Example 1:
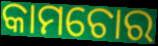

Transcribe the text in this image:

କାମଚୋର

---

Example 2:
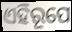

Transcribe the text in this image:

ଏହିରୂପେ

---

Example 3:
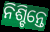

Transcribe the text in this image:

ନିଶ୍ଚିନ୍ତେ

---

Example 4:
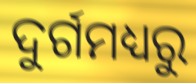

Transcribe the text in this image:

ଦୁର୍ଗମଧ୍ୟରୁ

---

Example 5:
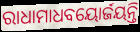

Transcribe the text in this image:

ରାଧାମାଧବୟୋର୍ଜୟନ୍ତି